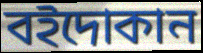
বইদোকান